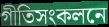
গীতিসংকলনে